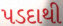
પડદાથી